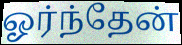
ஓர்ந்தேன்